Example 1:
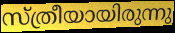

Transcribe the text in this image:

സ്ത്രീയായിരുന്നു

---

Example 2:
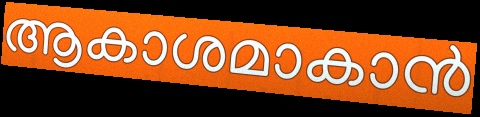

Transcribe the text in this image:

ആകാശമാകാൻ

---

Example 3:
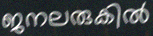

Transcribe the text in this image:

ജനലരുകിൽ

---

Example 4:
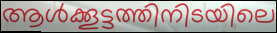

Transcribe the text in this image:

ആൾക്കൂട്ടത്തിനിടയിലെ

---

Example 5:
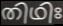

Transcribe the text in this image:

തിഥിഃ